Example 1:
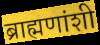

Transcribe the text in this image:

ब्राह्मणांशी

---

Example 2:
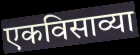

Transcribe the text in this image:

एकविसाव्या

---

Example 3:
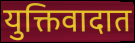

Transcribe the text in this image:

युक्तिवादात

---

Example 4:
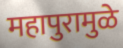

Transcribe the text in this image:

महापुरामुळे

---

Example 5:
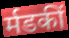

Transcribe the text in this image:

र्मडकीं